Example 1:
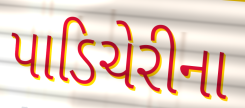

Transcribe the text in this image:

પાડિચેરીના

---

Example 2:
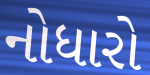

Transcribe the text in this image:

નોધારો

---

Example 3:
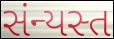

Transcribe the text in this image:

સંન્યસ્ત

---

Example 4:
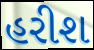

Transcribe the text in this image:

હરીશ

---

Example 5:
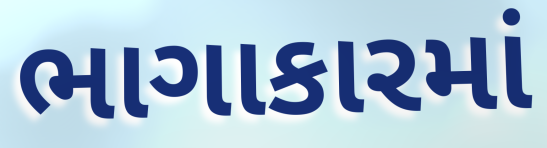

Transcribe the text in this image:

ભાગાકારમાં